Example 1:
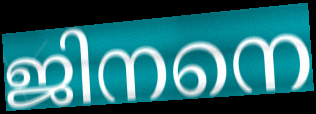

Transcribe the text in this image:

ജിനനെ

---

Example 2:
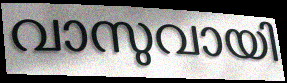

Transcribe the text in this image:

വാസുവായി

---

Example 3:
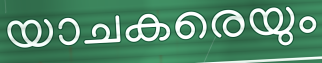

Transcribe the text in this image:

യാചകരെയും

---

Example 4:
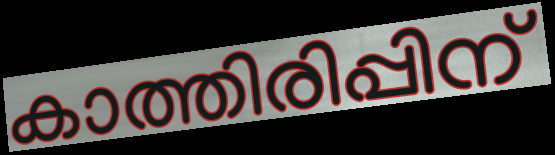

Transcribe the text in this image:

കാത്തിരിപ്പിന്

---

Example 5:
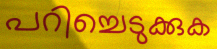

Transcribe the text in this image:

പറിച്ചെടുക്കുക